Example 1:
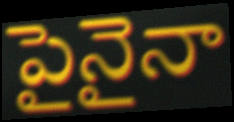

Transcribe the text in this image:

పైనైనా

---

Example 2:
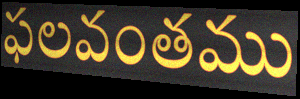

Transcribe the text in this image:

ఫలవంతము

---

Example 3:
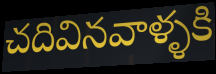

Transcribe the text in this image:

చదివినవాళ్ళకి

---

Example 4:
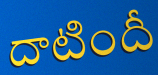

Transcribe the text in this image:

దాటిందీ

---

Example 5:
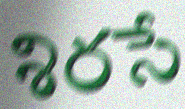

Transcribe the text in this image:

శిరసే